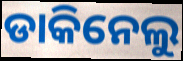
ଡାକିନେଲୁ